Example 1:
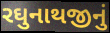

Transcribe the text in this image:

રઘુનાથજીનું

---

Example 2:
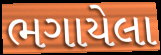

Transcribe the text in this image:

ભગાયેલા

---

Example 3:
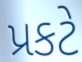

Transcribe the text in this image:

પ્રકટે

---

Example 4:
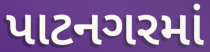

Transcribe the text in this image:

પાટનગરમાં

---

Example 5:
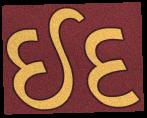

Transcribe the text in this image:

ઈદ